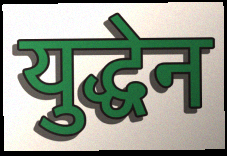
युद्धेन